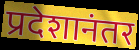
प्रदेशानंतर